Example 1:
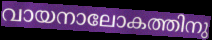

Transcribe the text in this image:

വായനാലോകത്തിനു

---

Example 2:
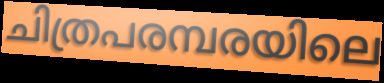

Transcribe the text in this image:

ചിത്രപരമ്പരയിലെ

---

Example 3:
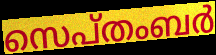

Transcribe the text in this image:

സെപ്തംബർ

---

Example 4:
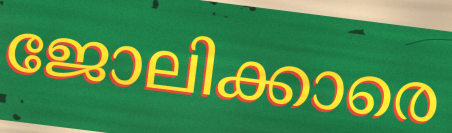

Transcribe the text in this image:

ജോലിക്കാരെ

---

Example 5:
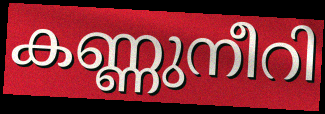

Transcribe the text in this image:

കണ്ണുനീറി